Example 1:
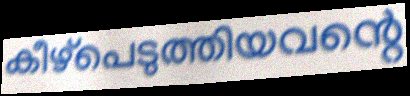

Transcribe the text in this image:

കീഴ്പെടുത്തിയവന്റെ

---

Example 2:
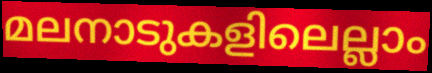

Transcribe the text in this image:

മലനാടുകളിലെല്ലാം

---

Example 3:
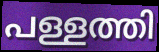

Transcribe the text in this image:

പള്ളത്തി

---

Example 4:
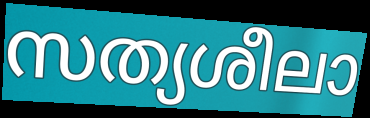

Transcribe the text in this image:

സത്യശീലാ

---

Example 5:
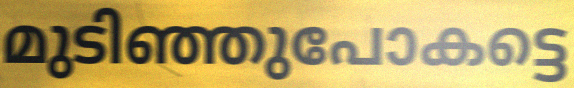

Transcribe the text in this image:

മുടിഞ്ഞുപോകട്ടെ